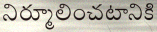
నిర్మూలించటానికి